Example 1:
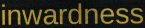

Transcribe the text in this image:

inwardness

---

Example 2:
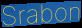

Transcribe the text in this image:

Srabon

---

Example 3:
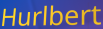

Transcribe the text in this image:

Hurlbert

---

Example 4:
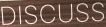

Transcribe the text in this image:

DISCUSS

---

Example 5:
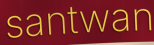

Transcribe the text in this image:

santwan